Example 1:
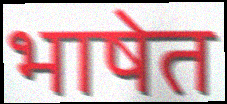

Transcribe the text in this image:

भाषेत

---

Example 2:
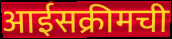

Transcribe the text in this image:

आईसक्रीमची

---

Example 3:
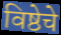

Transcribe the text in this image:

विष्ठेचे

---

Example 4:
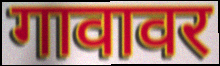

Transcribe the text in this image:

गावावर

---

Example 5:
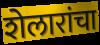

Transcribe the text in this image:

शेलारांचा